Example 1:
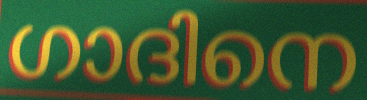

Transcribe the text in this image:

ഗാദിനെ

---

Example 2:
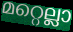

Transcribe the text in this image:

മറ്റെല്ലാ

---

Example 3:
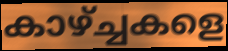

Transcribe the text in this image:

കാഴ്ച്ചകളെ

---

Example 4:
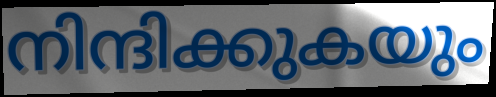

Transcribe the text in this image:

നിന്ദിക്കുകയും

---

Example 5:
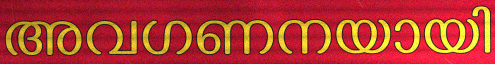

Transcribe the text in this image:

അവഗണനയായി